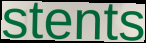
stents